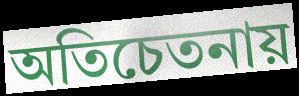
অতিচেতনায়